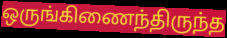
ஒருங்கிணைந்திருந்த